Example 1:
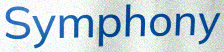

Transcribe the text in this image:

Symphony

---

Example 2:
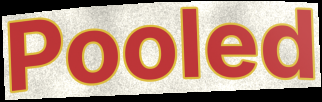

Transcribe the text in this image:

Pooled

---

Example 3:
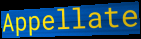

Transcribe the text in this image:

Appellate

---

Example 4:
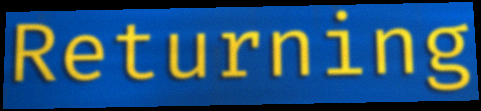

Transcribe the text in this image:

Returning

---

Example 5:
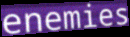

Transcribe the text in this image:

enemies